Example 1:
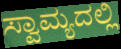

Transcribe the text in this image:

ಸ್ವಾಮ್ಯದಲ್ಲಿ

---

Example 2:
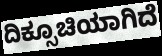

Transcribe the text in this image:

ದಿಕ್ಸೂಚಿಯಾಗಿದೆ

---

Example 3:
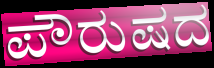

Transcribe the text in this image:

ಪೌರುಷದ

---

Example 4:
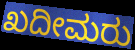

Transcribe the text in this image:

ಖದೀಮರು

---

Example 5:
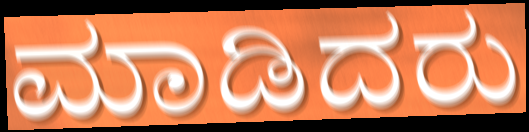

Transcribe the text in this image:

ಮಾಡಿದರು